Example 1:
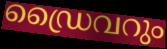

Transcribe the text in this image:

ഡ്രൈവറും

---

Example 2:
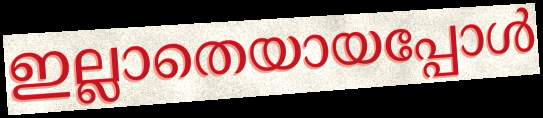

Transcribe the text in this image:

ഇല്ലാതെയായപ്പോൾ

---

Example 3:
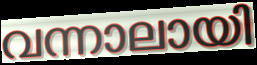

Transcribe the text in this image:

വന്നാലായി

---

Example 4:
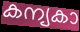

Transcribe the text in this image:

കന്യകാ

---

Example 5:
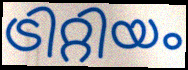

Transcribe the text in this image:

ട്രിറ്റിയം